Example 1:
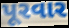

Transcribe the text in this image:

પૂરવાર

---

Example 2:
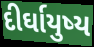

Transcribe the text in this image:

દીર્ઘાયુષ્ય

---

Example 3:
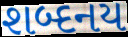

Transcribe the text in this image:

શબ્દનય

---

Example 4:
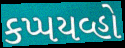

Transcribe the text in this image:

કપ્પયવ્હો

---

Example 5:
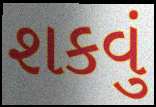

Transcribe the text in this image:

શકવું